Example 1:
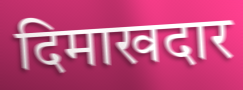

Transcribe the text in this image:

दिमाखदार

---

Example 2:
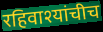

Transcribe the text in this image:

रहिवाश्यांचीच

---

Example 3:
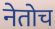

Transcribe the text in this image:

नेतोच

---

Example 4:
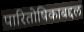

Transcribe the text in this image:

पारितोषिकाबद्दल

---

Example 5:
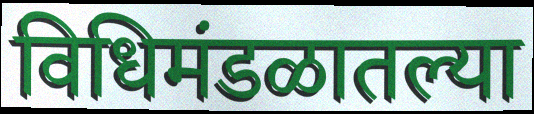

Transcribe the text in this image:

विधिमंडळातल्या